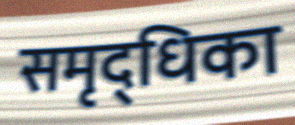
समृद्धिका